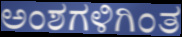
ಅಂಶಗಳಿಗಿಂತ